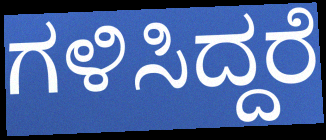
ಗಳಿಸಿದ್ದರೆ